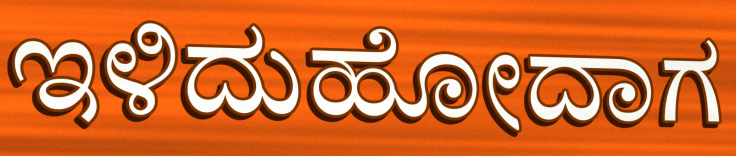
ಇಳಿದುಹೋದಾಗ